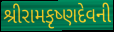
શ્રીરામકૃષ્ણદેવની